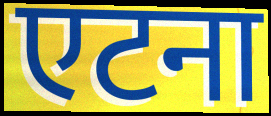
एटना